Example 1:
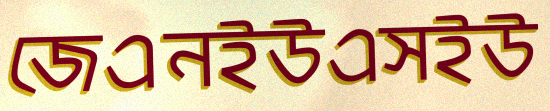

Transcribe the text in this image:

জেএনইউএসইউ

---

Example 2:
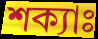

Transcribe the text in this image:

শক্যাঃ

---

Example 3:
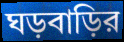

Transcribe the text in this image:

ঘড়বাড়ির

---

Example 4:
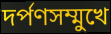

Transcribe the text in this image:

দর্পণসম্মুখে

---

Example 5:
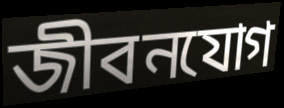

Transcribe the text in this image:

জীবনযোগ